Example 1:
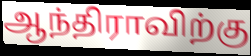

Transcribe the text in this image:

ஆந்திராவிற்கு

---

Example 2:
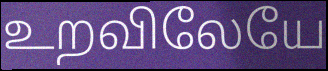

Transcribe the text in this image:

உறவிலேயே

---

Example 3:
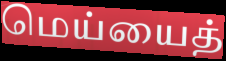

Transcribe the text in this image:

மெய்யைத்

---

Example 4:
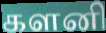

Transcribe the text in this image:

களனி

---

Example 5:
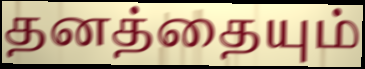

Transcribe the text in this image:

தனத்தையும்